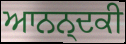
ਆਨਨ੍ਦਕੀ